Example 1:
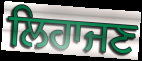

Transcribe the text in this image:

ਲਿਹਾਜਣ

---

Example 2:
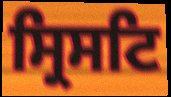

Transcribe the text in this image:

ਸ੍ਰਿਸਟਿ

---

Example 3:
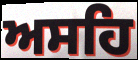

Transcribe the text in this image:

ਅਸਹਿ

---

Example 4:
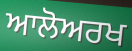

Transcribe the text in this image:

ਆਲੋਅਰਖ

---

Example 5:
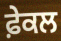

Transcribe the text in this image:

ਫ਼ੇਕਲ